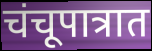
चंचूपात्रात